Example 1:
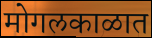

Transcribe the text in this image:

मोगलकाळात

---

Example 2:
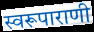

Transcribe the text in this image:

स्वरूपाराणी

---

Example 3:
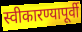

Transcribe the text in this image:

स्वीकारण्यापूर्वी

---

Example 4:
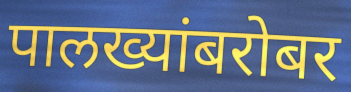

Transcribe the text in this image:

पालख्यांबरोबर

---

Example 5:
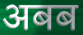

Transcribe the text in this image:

अबब